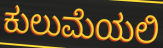
ಕುಲುಮೆಯಲಿ